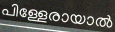
പിള്ളേരായാൽ